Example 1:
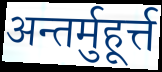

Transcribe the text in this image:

अन्तर्मुहूर्त्त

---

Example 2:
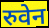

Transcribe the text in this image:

रुवेन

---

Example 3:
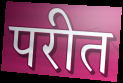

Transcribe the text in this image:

परीत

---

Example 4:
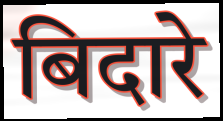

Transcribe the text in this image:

बिदारे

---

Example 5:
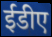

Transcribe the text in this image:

ईडीए